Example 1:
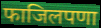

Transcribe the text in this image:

फाजिलपणा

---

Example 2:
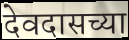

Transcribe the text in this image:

देवदासच्या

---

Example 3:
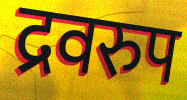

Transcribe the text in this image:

द्रवरुप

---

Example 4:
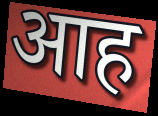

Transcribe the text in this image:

आह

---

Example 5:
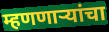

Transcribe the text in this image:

म्हणणाऱ्यांचा